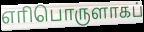
எரிபொருளாகப்